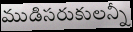
ముడిసరుకులన్నీ